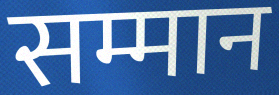
सम्‍मान